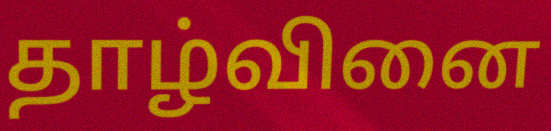
தாழ்வினை